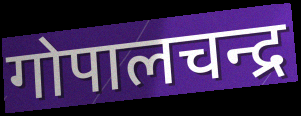
गोपालचन्द्र